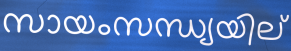
സായംസന്ധ്യയില്